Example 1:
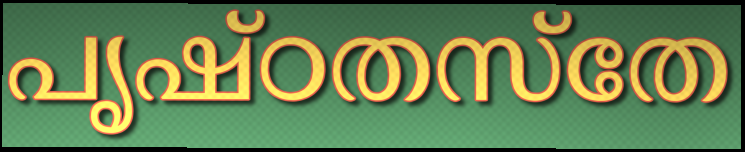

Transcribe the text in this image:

പൃഷ്ഠതസ്തേ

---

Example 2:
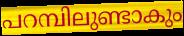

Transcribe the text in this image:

പറമ്പിലുണ്ടാകും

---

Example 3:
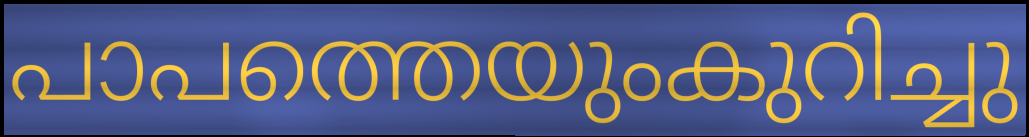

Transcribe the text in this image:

പാപത്തെയുംകുറിച്ചു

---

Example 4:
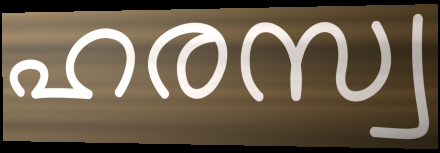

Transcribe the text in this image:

ഹരസ്വ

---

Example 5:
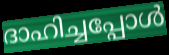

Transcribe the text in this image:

ദാഹിച്ചപ്പോൾ